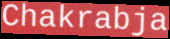
Chakrabja